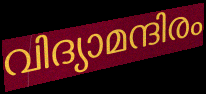
വിദ്യാമന്ദിരം